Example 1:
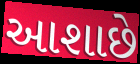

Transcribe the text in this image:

આશાછે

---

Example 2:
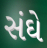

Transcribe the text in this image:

સંઘે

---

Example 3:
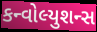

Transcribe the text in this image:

કન્વોલ્યુશન્સ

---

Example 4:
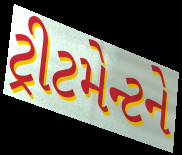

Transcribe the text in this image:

ટ્રીટમેન્ટને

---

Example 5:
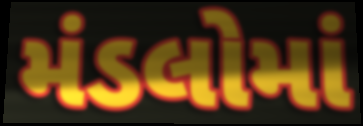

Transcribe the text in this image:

મંડલોમાં